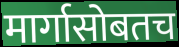
मार्गासोबतच